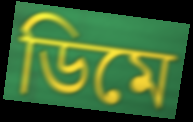
ডিমে